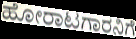
ಹೋರಾಟಗಾರನಿಗೆ